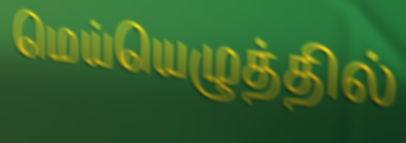
மெய்யெழுத்தில்